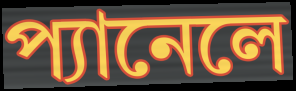
প্যানেলে